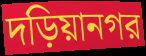
দড়িয়ানগর